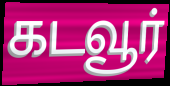
கடவூர்